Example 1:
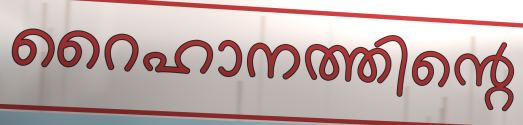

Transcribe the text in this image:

റൈഹാനത്തിന്റെ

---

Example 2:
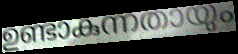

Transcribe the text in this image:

ഉണ്ടാകുന്നതായും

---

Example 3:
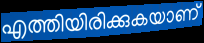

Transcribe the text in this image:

എത്തിയിരിക്കുകയാണ്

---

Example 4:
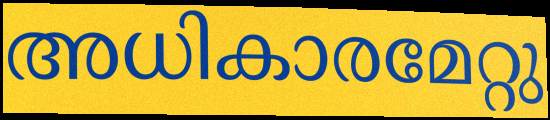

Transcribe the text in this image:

അധികാരമേറ്റു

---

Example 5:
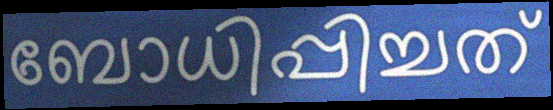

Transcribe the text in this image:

ബോധിപ്പിച്ചത്